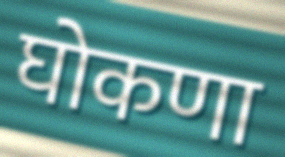
घोकणा